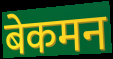
बेकमन